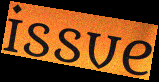
issue